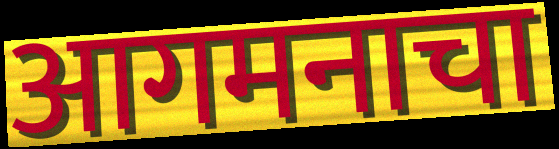
आगमनाचा